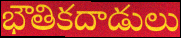
భౌతికదాడులు